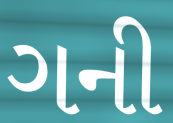
ગની